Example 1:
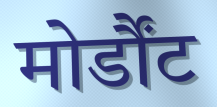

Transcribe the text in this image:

मोर्डौंट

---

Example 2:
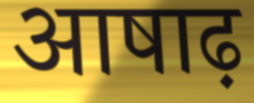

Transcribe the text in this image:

आषाढ़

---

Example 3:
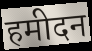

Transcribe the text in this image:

हमीदन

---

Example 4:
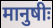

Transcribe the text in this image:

मानुषीः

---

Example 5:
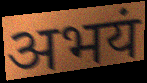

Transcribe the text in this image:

अभयं